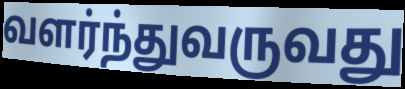
வளர்ந்துவருவது